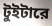
টুইটারে